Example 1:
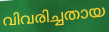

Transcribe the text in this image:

വിവരിച്ചതായ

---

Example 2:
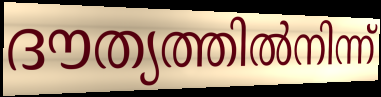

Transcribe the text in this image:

ദൗത്യത്തിൽനിന്ന്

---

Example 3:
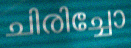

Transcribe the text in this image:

ചിരിച്ചോ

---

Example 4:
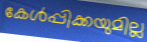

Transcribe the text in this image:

കേൾപ്പിക്കയുമില്ല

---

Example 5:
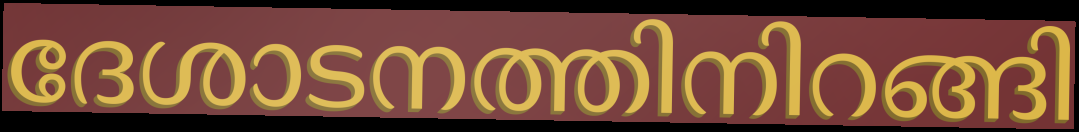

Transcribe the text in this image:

ദേശാടനത്തിനിറങ്ങി